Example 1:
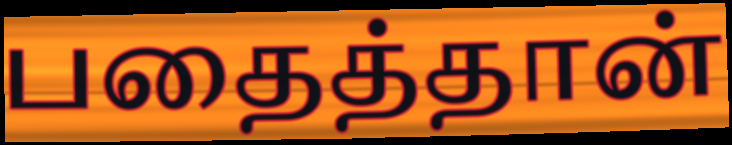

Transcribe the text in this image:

பதைத்தான்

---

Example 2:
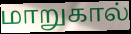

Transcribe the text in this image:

மாறுகால்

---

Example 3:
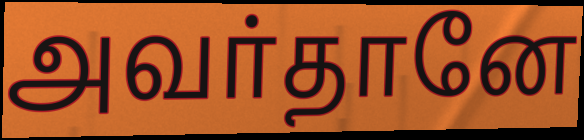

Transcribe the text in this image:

அவர்தானே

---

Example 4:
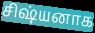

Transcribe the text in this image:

சிஷ்யனாக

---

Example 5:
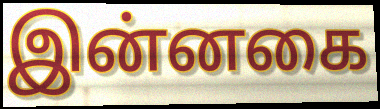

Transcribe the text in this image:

இன்னகை